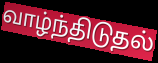
வாழ்ந்திடுதல்